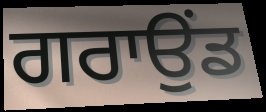
ਗਰਾਉਂਡ